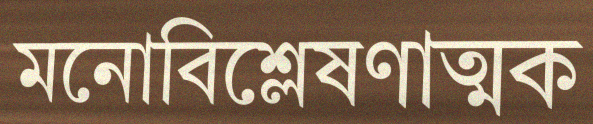
মনোবিশ্লেষণাত্মক